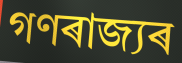
গণৰাজ্যৰ